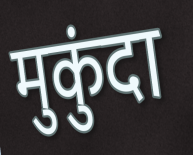
मुकुंदा